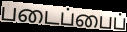
படைப்பைப்